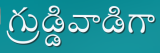
గ్రుడ్డివాడిగా